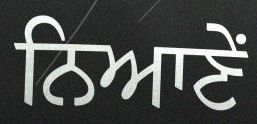
ਨਿਆਣੇਂ